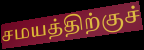
சமயத்திற்குச்